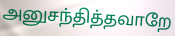
அனுசந்தித்தவாறே